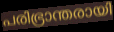
പരിഭ്രാന്തരായി